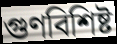
গুণবিশিষ্ট